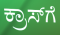
ಕ್ರಾಸ್‌ಗೆ